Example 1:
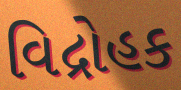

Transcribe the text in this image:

વિદ્રોહક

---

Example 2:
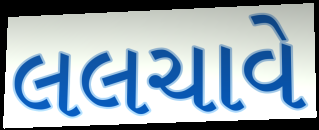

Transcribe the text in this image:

લલચાવે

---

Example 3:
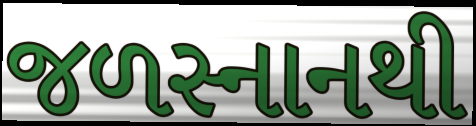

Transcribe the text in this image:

જળસ્નાનથી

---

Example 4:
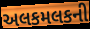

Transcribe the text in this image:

અલકમલકની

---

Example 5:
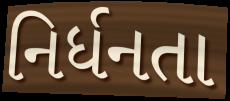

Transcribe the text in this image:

નિર્ધનતા